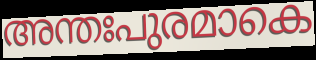
അന്തഃപുരമാകെ